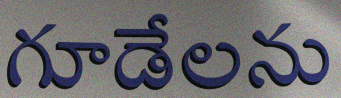
గూడేలను